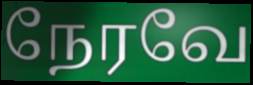
நேரவே